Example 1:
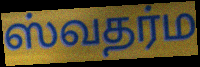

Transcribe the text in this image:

ஸ்வதர்ம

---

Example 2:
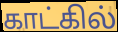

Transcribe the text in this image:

காட்கில்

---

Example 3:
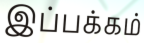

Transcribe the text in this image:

இப்பக்கம்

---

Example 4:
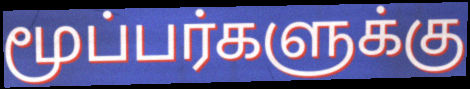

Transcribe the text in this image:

மூப்பர்களுக்கு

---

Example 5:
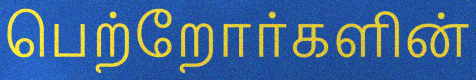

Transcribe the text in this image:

பெற்றோர்களின்